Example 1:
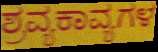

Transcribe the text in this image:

ಶ್ರವ್ಯಕಾವ್ಯಗಳ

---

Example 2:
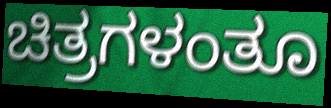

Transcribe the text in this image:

ಚಿತ್ರಗಳಂತೂ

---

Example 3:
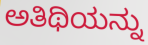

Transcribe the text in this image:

ಅತಿಥಿಯನ್ನು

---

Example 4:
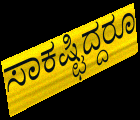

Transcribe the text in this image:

ಸಾಕಷ್ಟಿದ್ದರೂ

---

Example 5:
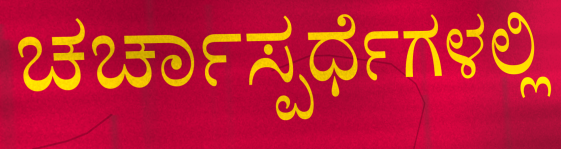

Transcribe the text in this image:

ಚರ್ಚಾಸ್ಪರ್ಧೆಗಳಲ್ಲಿ